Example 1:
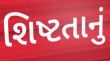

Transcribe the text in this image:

શિષ્ટતાનું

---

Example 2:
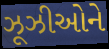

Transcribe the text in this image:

ઝૂઝીઓને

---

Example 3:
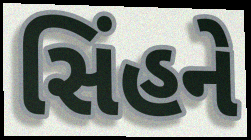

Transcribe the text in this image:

સિંહને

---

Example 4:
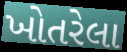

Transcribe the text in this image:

ખોતરેલા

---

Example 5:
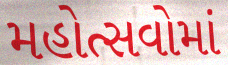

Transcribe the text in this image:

મહોત્સવોમાં